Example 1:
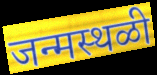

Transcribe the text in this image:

जन्मस्थळी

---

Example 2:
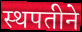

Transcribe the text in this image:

स्थपतीने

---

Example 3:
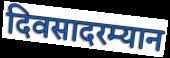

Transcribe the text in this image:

दिवसादरम्यान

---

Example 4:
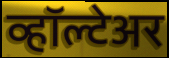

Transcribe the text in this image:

व्हॉल्टेअर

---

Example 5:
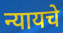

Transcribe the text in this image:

न्यायचे